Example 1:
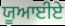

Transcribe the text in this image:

ਯੂਆਈਏ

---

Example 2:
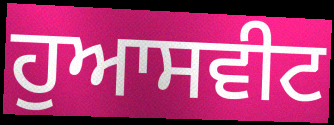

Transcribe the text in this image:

ਹੁਆਸਵੀਟ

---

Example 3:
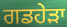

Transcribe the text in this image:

ਗਡਹੇੜਾ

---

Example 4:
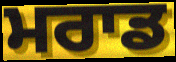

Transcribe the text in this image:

ਮਰਾਡ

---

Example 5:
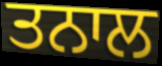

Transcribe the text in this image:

ਤਨਾਲ